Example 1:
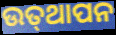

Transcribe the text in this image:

ଉତ୍‍ଥାପନ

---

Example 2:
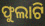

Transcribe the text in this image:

ଫୁଲାଟି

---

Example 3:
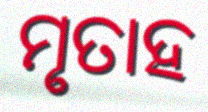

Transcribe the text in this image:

ମୃତାହ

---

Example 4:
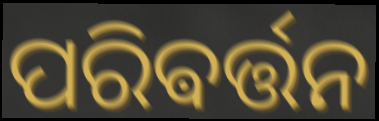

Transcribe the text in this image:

ପରିଵର୍ତ୍ତନ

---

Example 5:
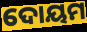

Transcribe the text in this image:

ଦୋୟମ